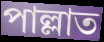
পাল্লাত